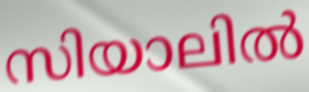
സിയാലിൽ